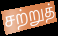
சற்றுத்